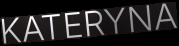
KATERYNA